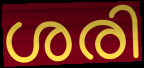
ശരി